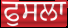
ਫੁਸਲਾ